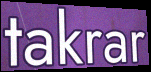
takrar